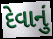
દેવાનું